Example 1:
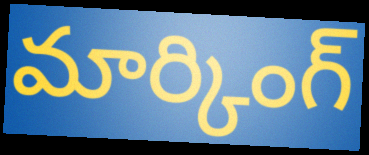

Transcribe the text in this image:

మార్కింగ్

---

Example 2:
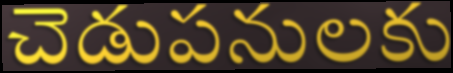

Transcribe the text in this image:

చెడుపనులకు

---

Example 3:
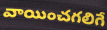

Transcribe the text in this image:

వాయించగలిగే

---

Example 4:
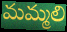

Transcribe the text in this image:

మమ్మలి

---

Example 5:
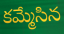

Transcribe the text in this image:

కమ్మేసిన